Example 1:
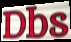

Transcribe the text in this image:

Dbs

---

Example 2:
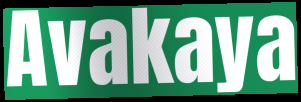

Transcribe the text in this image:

Avakaya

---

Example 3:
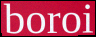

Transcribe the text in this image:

boroi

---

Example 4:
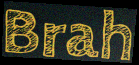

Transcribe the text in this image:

Brah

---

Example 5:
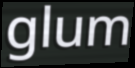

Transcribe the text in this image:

glum